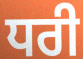
ਧਰੀ